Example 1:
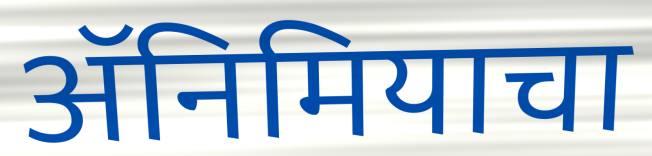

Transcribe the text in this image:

ॲनिमियाचा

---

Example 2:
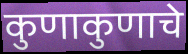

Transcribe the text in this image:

कुणाकुणाचे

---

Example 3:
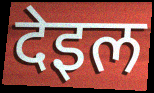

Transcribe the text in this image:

देइल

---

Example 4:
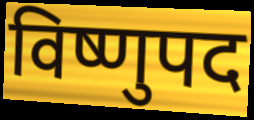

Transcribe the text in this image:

विष्णुपद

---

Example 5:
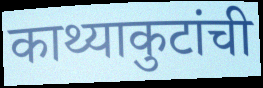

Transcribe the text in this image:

काथ्याकुटांची